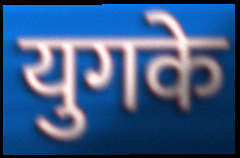
युगके